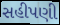
સહીપણી